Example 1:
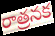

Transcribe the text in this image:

రాత్రనక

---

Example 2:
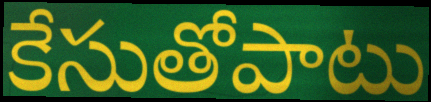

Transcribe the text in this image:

కేసుతోపాటు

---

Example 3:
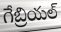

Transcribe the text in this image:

గేబ్రియల్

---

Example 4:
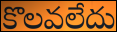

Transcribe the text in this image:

కొలవలేదు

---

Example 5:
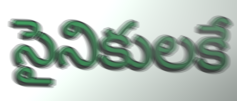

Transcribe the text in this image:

సైనికులకే